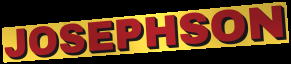
JOSEPHSON